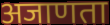
अजाणता